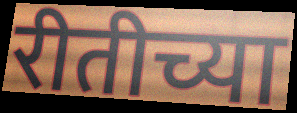
रीतीच्या